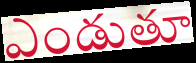
ఎండుతూ